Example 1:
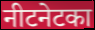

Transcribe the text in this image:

नीटनेटका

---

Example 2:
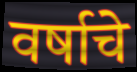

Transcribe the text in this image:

वर्षाचे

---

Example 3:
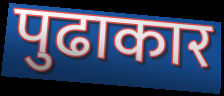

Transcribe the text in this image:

पुढाकार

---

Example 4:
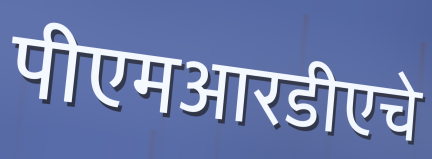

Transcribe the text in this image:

पीएमआरडीएचे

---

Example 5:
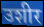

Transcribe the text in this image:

उशीर